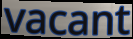
vacant